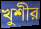
খুশীর